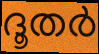
ദൂതർ